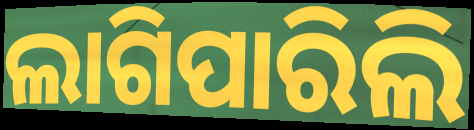
ଲାଗିପାରିଲି